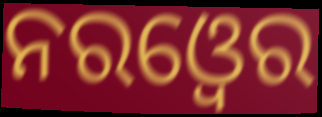
ନରଓ୍ବେର